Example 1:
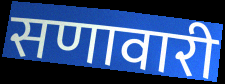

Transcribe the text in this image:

सणावारी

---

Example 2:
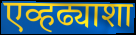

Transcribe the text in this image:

एव्हढ्याशा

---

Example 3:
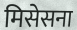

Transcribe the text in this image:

मिसेसना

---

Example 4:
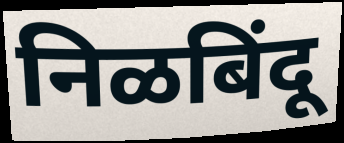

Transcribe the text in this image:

निळबिंदू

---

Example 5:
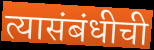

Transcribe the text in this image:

त्यासंबंधीची